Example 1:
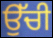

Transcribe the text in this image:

ਉੱਚੀ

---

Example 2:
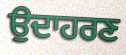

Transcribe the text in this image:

ਉਦਾਹਰਣ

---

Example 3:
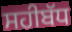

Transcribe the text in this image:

ਸਹੀਬੱਧ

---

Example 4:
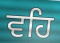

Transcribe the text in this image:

ਵਹਿ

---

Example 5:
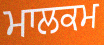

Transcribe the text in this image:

ਮਾਲਕਮ